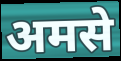
अमसे